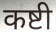
कष्टी